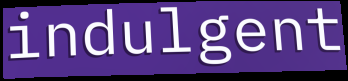
indulgent